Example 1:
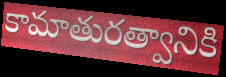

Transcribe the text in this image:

కామాతురత్వానికి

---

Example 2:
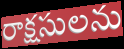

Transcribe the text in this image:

రాక్షసులను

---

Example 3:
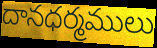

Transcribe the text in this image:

దానధర్మములు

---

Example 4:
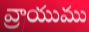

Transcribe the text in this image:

వ్రాయుము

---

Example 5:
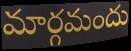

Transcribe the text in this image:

మార్గమందు